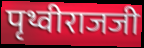
पृथ्वीराजजी